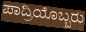
ಪಾದ್ರಿಯೊಬ್ಬರು